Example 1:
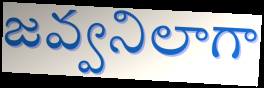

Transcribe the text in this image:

జవ్వనిలాగా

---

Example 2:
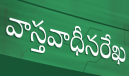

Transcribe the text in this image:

వాస్తవాధీనరేఖ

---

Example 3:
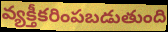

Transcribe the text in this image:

వ్యక్తీకరింపబడుతుంది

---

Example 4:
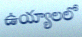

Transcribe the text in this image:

ఉయ్యాలలో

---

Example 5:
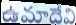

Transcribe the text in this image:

ఉమాదేవి